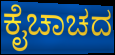
ಕೈಚಾಚದ